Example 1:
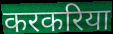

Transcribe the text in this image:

करकरिया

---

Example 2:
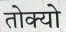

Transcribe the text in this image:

तोक्यो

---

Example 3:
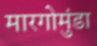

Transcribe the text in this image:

मारगोमुंडा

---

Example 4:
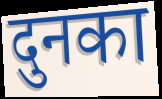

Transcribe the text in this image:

दुनका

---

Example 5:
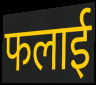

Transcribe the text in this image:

फलाई